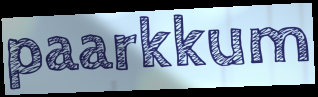
paarkkum